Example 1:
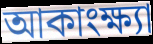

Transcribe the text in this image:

আকাংক্ষ্যা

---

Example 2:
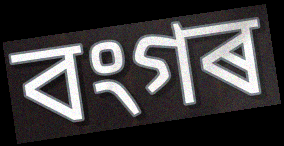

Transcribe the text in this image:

বংগৰ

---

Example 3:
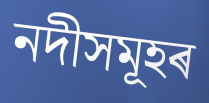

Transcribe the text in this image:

নদীসমূহৰ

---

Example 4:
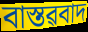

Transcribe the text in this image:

বাস্তৱবাদ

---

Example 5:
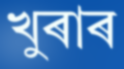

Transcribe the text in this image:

খুৰাৰ